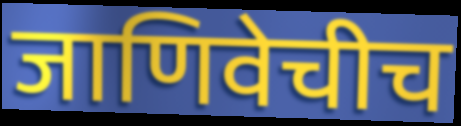
जाणिवेचीच